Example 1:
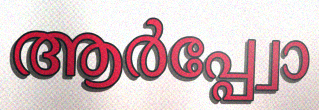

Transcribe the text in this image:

ആർപ്പ്വോ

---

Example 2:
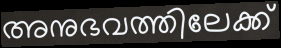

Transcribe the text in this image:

അനുഭവത്തിലേക്ക്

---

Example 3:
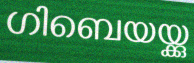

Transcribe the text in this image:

ഗിബെയയ്ക്കു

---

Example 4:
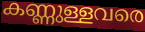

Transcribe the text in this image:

കണ്ണുള്ളവരെ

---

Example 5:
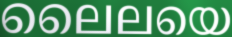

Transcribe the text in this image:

ലൈലയെ